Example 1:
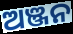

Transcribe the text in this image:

ଅଞ୍ଜନ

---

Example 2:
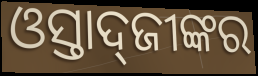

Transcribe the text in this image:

ଓସ୍ତାଦ୍‌ଜୀଙ୍କର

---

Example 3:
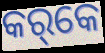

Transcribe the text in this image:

କର୍‌କେ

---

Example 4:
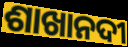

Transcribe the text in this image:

ଶାଖାନଦୀ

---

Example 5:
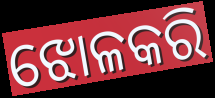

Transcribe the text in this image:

ଝୋଳକରି